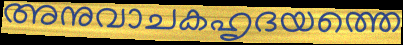
അനുവാചകഹൃദയത്തെ